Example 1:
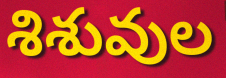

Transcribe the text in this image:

శిశువుల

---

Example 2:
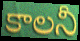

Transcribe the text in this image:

కాలనీ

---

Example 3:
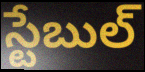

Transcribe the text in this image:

స్టేబుల్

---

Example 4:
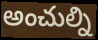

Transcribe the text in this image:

అంచుల్ని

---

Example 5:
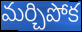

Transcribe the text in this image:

మర్చిపోక